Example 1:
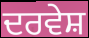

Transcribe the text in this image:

ਦਰਵੇਸ਼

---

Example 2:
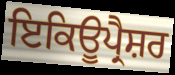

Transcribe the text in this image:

ਇਕਿਊਪ੍ਰੈਸ਼ਰ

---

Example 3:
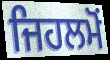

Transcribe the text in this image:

ਜਿਹਲਮੋਂ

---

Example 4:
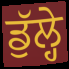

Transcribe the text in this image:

ਡੁੱਲ੍ਹੇ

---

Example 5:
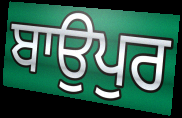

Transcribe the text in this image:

ਬਾਉਪੁਰ